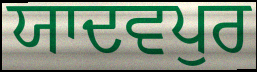
ਯਾਦਵਪੁਰ